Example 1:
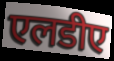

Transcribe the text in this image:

एलडीए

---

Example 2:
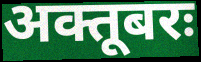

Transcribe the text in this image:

अक्तूबरः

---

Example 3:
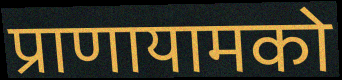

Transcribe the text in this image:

प्राणायामको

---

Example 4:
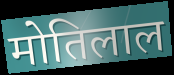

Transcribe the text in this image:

मोतिलाल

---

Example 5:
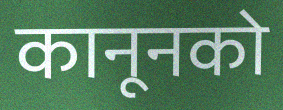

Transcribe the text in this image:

कानूनको